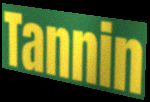
Tannin